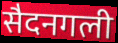
सैदनगली